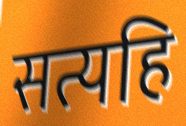
सत्यहि